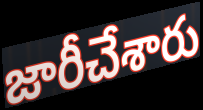
జారీచేశారు